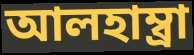
আলহাম্ব্রা